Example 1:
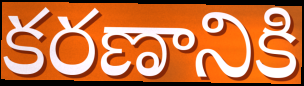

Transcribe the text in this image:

కరణానికి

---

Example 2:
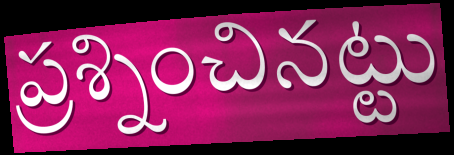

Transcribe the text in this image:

ప్రశ్నించినట్టు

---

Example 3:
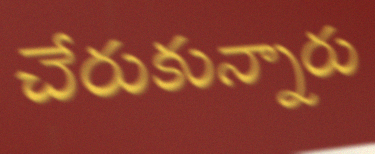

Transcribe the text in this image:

చేరుకున్నారు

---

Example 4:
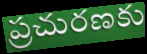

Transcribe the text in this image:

ప్రచురణకు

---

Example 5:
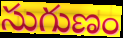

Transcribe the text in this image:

సుగుణం